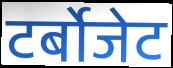
टर्बोजेट